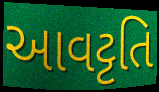
આવટ્ટતિ